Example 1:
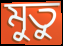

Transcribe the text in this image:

মুতু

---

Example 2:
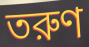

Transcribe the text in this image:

তরুণ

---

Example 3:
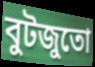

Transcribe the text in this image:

বুটজুতো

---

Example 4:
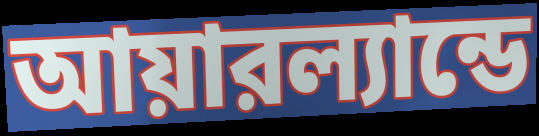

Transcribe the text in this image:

আয়ারল্যান্ডে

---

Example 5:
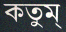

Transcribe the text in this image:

কতুম্